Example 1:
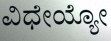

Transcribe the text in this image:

ವಿಧೇಯ್ಯೋ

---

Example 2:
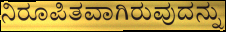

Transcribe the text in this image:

ನಿರೂಪಿತವಾಗಿರುವುದನ್ನು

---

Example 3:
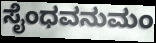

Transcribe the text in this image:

ಸೈಂಧವನುಮಂ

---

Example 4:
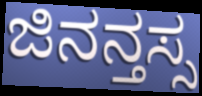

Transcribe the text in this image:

ಜಿನನ್ತಸ್ಸ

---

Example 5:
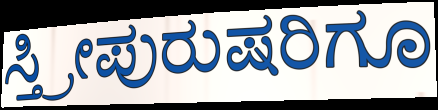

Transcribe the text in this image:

ಸ್ತ್ರೀಪುರುಷರಿಗೂ